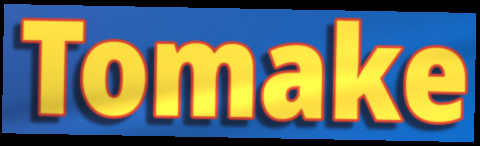
Tomake